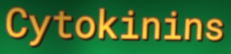
Cytokinins